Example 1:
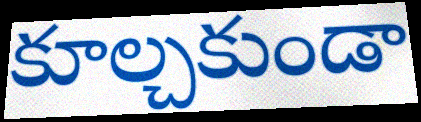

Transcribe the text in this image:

కూల్చకుండా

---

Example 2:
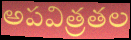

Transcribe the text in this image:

అపవిత్రతల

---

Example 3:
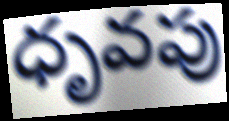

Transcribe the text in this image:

ధృవపు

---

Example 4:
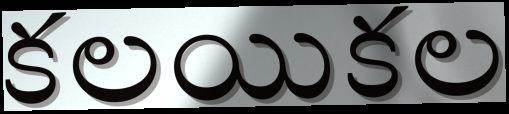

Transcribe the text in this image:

కలయికల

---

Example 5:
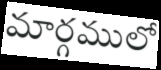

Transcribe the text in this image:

మార్గములో